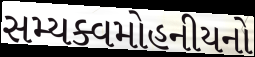
સમ્યક્વમોહનીયનો